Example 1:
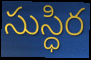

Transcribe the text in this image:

సుస్ధిర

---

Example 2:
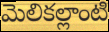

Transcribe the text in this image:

మెలికల్లాంటి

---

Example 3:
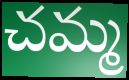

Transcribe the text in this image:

చమ్మ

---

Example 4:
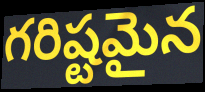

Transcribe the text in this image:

గరిష్టమైన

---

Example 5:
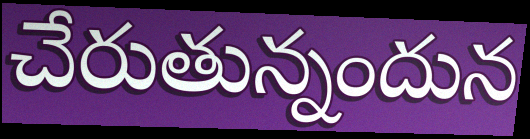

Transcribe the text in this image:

చేరుతున్నందున